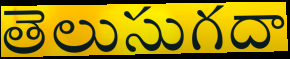
తెలుసుగదా